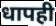
धापही